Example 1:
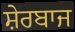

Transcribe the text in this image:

ਸ਼ੇਰਬਾਜ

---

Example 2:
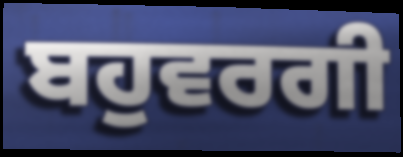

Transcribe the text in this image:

ਬਹੁਵਰਗੀ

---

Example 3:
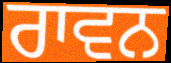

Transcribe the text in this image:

ਰਾਵਨ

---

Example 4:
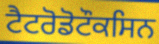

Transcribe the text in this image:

ਟੈਟਰੋਡੋਟੌਕਸਿਨ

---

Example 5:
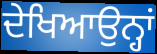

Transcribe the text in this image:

ਦੇਖਿਆਉਨ੍ਹਾਂ